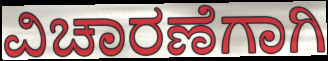
ವಿಚಾರಣೆಗಾಗಿ